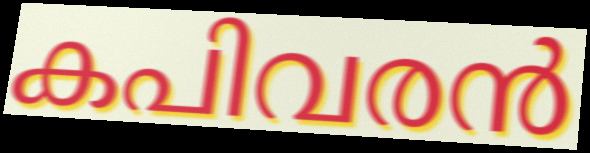
കപിവരൻ